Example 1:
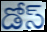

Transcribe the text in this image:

డోస్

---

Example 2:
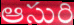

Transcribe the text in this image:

ఆసురి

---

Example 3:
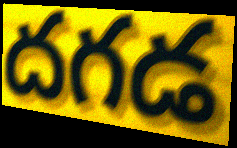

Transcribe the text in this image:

దగడ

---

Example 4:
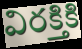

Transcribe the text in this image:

విరక్తికి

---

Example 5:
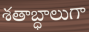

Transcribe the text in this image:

శతాబ్ధాలుగా